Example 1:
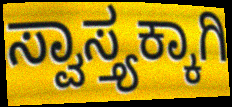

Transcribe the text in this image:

ಸ್ವಾಸ್ತ್ಯಕ್ಕಾಗಿ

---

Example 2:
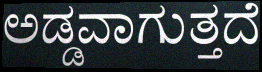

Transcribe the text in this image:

ಅಡ್ಡವಾಗುತ್ತದೆ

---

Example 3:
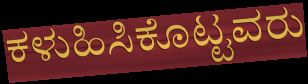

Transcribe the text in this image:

ಕಳುಹಿಸಿಕೊಟ್ಟವರು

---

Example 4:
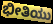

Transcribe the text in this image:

ಭೀತಿಯು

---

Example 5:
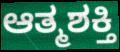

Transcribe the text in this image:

ಆತ್ಮಶಕ್ತಿ